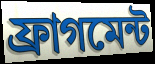
ফ্ৰাগমেন্ট